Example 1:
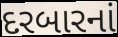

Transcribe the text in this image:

દરબારનાં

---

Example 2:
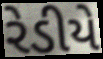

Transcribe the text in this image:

રેડીયે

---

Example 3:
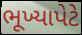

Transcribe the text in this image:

ભૂખ્યાપેટે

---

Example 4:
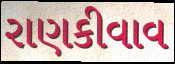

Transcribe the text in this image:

રાણકીવાવ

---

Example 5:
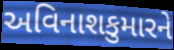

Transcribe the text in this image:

અવિનાશકુમારને